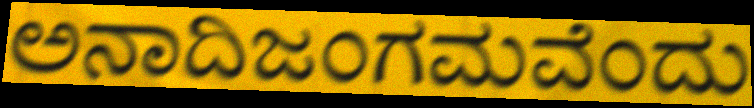
ಅನಾದಿಜಂಗಮವೆಂದು